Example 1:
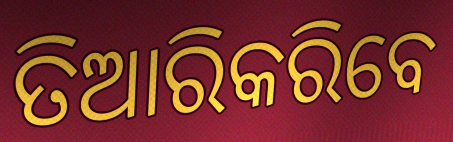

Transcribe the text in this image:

ତିଆରିକରିବେ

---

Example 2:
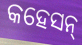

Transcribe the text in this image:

କହେସନ୍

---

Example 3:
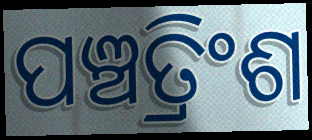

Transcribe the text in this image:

ପଞ୍ଚତ୍ରିଂଶ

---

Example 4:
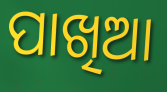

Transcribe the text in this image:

ପାଖିଆ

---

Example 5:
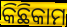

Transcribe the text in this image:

କିଛିକାମ